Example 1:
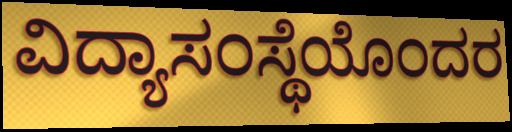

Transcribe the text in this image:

ವಿದ್ಯಾಸಂಸ್ಥೆಯೊಂದರ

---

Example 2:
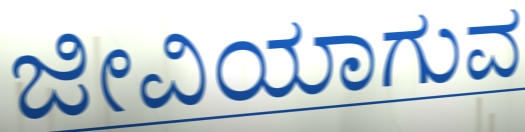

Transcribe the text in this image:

ಜೀವಿಯಾಗುವ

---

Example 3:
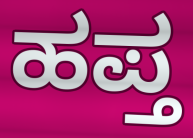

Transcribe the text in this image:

ಹಪ್ತ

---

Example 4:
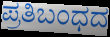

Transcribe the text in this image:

ಪ್ರತಿಬಂಧದ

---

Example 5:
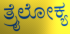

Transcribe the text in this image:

ತ್ರೈಲೋಕ್ಯ